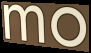
mo